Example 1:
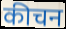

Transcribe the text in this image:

कीचन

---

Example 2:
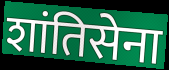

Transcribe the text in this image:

शांतिसेना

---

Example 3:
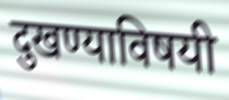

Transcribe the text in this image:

दुखण्याविषयी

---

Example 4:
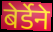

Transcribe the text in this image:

बेर्डेने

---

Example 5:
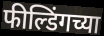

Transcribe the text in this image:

फील्डिंगच्या